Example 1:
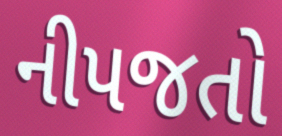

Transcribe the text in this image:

નીપજતો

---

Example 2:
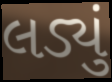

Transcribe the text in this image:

લડ્યું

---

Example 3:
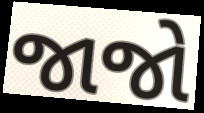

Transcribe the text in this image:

જાજો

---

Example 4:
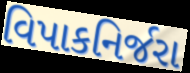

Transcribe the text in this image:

વિપાકનિર્જરા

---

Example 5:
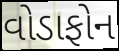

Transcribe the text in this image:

વોડાફોન